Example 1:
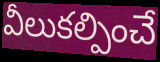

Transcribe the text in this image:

వీలుకల్పించే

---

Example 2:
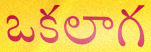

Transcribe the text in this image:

ఒకలాగ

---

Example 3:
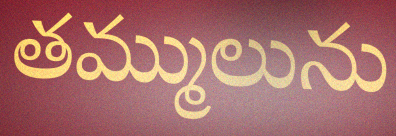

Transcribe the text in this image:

తమ్ములును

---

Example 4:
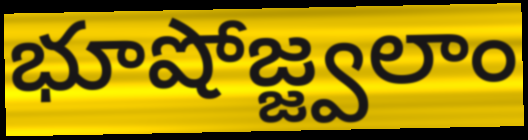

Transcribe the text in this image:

భూషోజ్జ్వలాం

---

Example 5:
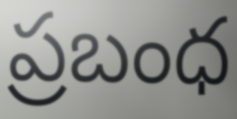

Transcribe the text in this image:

ప్రబంధ